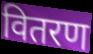
वितरण